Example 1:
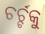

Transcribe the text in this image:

ଚର୍ଚ୍ଚକୁ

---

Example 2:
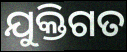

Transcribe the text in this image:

ଯୁକ୍ତିଗତ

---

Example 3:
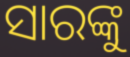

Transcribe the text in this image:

ସାରଙ୍କୁ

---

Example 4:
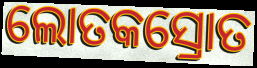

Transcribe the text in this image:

ଲୋତକସ୍ରୋତ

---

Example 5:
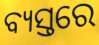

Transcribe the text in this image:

ବ୍ୟସ୍ତରେ